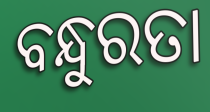
ବନ୍ଧୁରତା